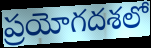
ప్రయోగదశలో